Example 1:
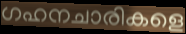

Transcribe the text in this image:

ഗഹനചാരികളെ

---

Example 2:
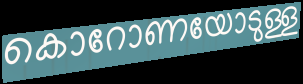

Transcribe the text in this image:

കൊറോണയോടുള്ള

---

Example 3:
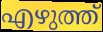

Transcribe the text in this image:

എഴുത്ത്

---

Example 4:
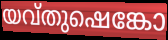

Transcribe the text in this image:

യവ്തുഷെങ്കോ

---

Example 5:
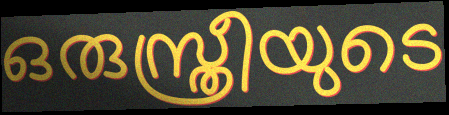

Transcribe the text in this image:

ഒരുസ്ത്രീയുടെ